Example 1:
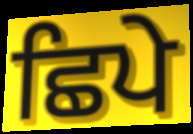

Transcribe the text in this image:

ਛਿਪੇ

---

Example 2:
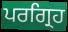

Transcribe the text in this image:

ਪਰਗ੍ਰਿਹ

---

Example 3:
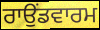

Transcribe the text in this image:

ਰਾਉਂਡਵਾਰਮ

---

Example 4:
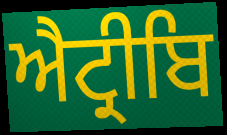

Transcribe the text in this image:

ਐਟ੍ਰੀਬਿ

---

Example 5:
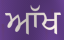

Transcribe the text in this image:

ਆੱਖ